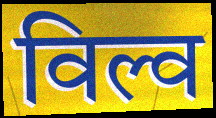
विल्व